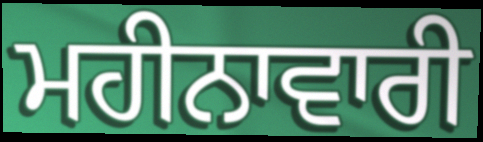
ਮਹੀਨਾਵਾਰੀ